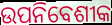
ଉପନିବେଶୀକ